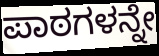
ಪಾಠಗಳನ್ನೇ